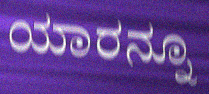
ಯಾರನ್ನೂ